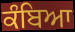
ਕੰਬਿਆ